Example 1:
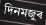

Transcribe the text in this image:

দিনমজুৰ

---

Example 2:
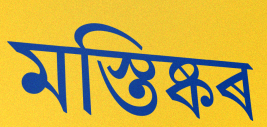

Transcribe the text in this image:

মস্তিষ্কৰ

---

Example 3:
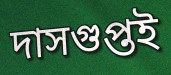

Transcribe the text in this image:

দাসগুপ্তই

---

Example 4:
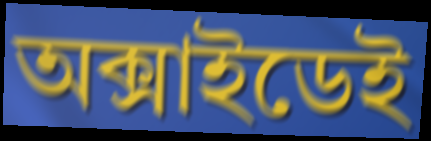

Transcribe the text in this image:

অক্সাইডেই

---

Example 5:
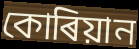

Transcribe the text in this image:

কোৰিয়ান